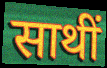
साथीं